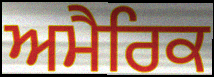
ਅਮੈਰਿਕ